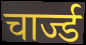
चार्ज्ड